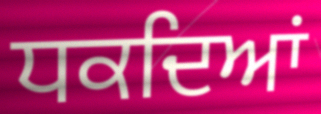
ਧਕਦਿਆਂ